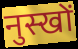
नुस्‍खों